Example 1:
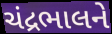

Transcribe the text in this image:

ચંદ્રભાલને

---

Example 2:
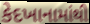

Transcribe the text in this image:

કેદખાનામાંથી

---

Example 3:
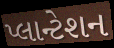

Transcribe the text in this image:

પ્લાન્ટેશન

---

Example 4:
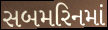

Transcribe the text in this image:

સબમરિનમાં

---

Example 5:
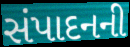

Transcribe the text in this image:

સંપાદનની